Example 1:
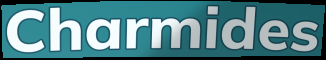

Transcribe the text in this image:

Charmides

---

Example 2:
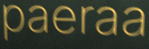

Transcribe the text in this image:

paeraa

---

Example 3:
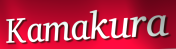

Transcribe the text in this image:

Kamakura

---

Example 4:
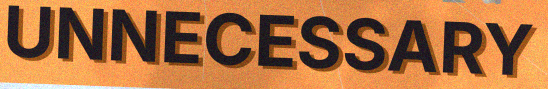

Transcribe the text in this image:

UNNECESSARY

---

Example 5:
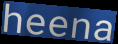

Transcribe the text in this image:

heena